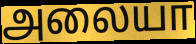
அலையா